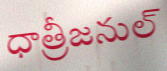
ధాత్రీజనుల్